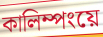
কালিম্পংয়ে